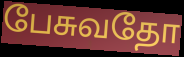
பேசுவதோ